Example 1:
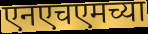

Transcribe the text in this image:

एनएचएमच्या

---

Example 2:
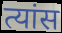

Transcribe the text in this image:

त्यांस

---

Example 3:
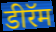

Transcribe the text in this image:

डीरॅम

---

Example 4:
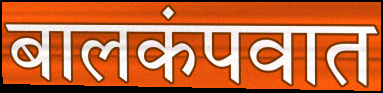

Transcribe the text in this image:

बालकंपवात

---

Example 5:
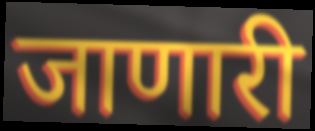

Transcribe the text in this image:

जाणारी